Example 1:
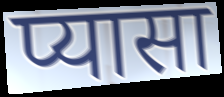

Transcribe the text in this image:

प्यासा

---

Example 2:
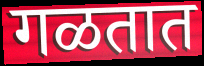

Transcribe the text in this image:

गळतात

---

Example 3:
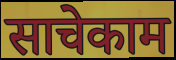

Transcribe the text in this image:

साचेकाम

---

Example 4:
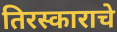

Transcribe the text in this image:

तिरस्काराचे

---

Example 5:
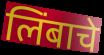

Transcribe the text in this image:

लिंबाचे